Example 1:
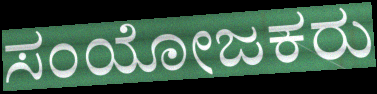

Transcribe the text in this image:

ಸಂಯೋಜಕರು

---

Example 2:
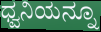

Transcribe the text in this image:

ಧ್ವನಿಯನ್ನೂ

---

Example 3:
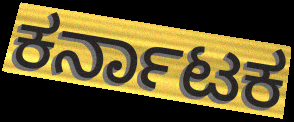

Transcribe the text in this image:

ಕರ್ನಾಟಕ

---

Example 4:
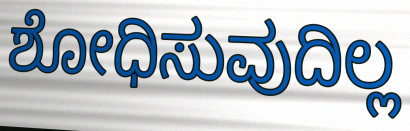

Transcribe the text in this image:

ಶೋಧಿಸುವುದಿಲ್ಲ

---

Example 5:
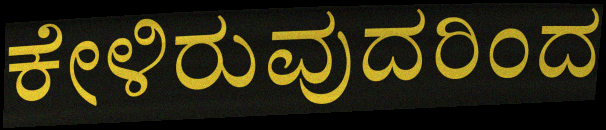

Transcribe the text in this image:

ಕೇಳಿರುವುದರಿಂದ